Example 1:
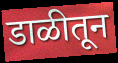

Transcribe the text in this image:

डाळीतून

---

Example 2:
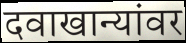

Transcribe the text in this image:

दवाखान्यांवर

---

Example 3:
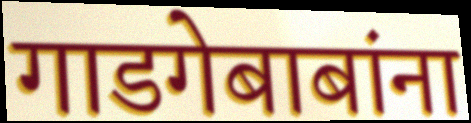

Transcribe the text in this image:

गाडगेबाबांना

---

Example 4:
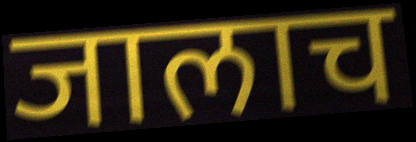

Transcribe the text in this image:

जालाच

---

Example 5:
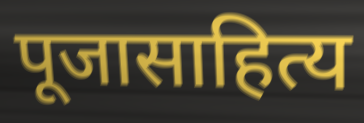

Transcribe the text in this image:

पूजासाहित्य